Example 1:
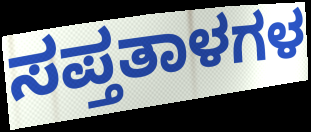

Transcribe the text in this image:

ಸಪ್ತತಾಳಗಳ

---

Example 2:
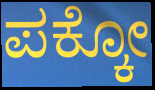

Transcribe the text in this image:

ಪಕ್ಕೋ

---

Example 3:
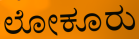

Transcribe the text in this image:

ಲೋಕೂರು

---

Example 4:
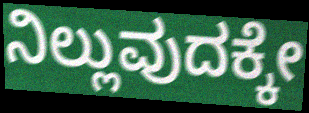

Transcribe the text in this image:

ನಿಲ್ಲುವುದಕ್ಕೇ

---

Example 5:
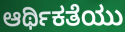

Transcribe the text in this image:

ಆರ್ಥಿಕತೆಯು